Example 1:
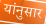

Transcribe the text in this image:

यांनुसार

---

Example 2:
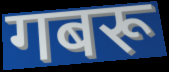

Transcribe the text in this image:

गबरू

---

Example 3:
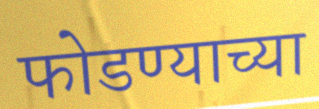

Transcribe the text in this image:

फोडण्याच्या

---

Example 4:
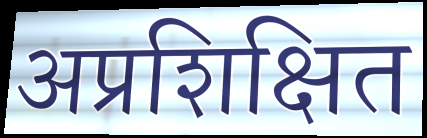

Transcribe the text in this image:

अप्रशिक्षित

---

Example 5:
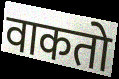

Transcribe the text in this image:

वाकतो